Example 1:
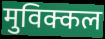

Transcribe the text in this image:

मुविक्कल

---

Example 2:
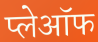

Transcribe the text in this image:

प्‍लेऑफ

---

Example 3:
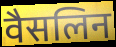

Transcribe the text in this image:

वैसलिन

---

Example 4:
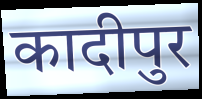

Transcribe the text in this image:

कादीपुर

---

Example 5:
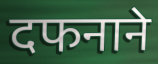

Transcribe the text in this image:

दफनाने